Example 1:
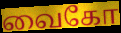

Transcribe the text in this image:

வைகோ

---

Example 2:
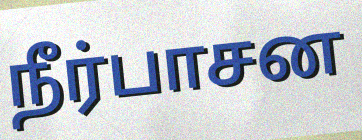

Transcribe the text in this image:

நீர்பாசன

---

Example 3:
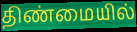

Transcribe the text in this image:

திண்மையில்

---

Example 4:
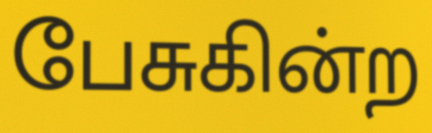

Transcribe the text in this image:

பேசுகின்ற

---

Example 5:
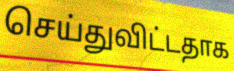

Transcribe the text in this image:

செய்துவிட்டதாக